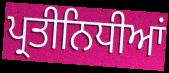
ਪ੍ਰਤੀਨਿਧੀਆਂ